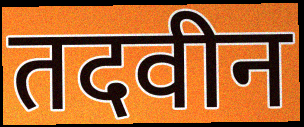
तदवीन